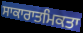
ਸਾਕਾਰਾਤਮਿਕਤਾ